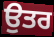
ਉਤਰ